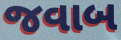
જવાબ